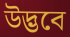
উদ্ভবে